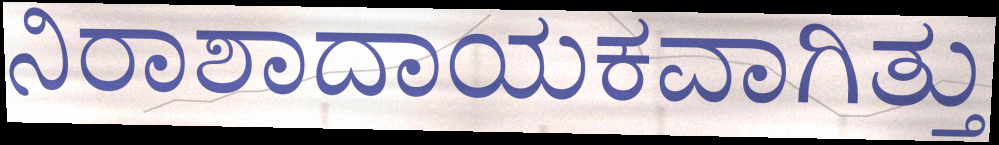
ನಿರಾಶಾದಾಯಕವಾಗಿತ್ತು